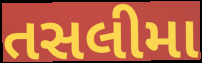
તસલીમા